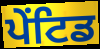
ਪੇਂਟਿਡ